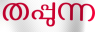
തപ്പുന്ന